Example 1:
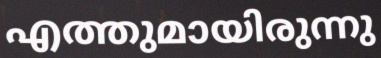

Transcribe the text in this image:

എത്തുമായിരുന്നു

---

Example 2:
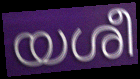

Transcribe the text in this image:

യശീ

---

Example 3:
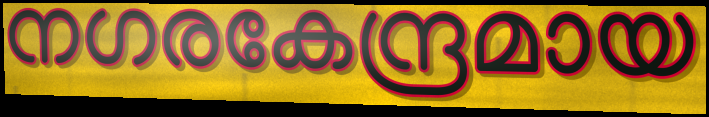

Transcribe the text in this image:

നഗരകേന്ദ്രമായ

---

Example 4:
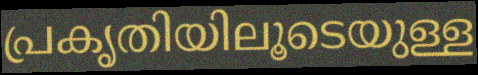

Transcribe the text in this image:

പ്രകൃതിയിലൂടെയുള്ള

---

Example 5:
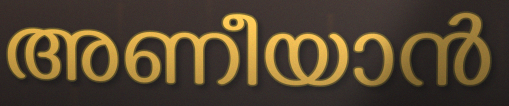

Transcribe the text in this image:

അണീയാൻ